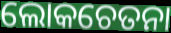
ଲୋକଚେତନା